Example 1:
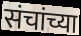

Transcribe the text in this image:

संचांच्या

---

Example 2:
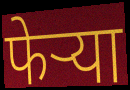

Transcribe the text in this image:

फेऱ्या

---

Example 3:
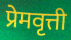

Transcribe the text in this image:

प्रेमवृत्ती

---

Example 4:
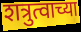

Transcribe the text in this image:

शत्रुत्वाच्या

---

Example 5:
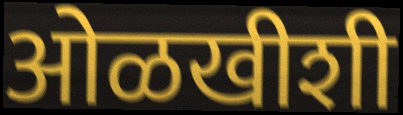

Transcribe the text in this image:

ओळखीशी